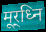
मूर्ध्नि